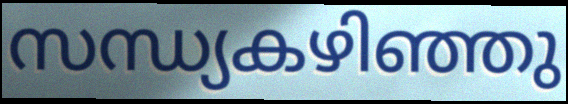
സന്ധ്യകഴിഞ്ഞു